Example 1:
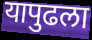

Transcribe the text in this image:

यापुढला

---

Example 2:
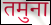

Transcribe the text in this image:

तमुना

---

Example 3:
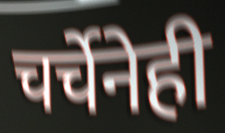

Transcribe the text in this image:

चर्चेनेही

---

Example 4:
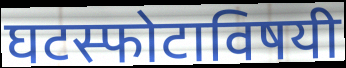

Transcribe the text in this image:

घटस्फोटाविषयी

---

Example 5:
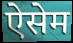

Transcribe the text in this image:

ऐसेम